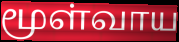
மூள்வாய